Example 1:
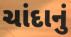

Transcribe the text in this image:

ચાંદાનું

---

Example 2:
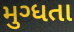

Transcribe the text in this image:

મુગ્ધતા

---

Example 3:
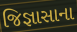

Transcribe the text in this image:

જિજ્ઞાસાના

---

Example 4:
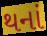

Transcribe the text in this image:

થનાં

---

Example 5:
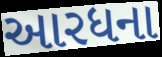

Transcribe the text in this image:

આરધના